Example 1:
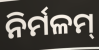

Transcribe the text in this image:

ନିର୍ମଳମ୍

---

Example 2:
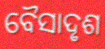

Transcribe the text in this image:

ବୈସାଦୃଶ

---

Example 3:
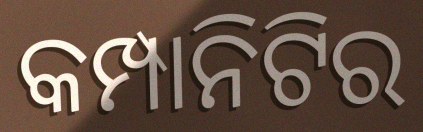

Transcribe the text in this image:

କମ୍ପାନିଟିର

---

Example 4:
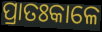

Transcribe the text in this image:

ପ୍ରାତଃକାଳେ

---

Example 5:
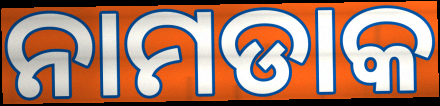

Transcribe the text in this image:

ନାମଡାକ